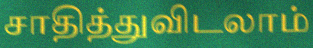
சாதித்துவிடலாம்